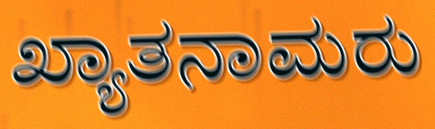
ಖ್ಯಾತನಾಮರು